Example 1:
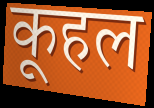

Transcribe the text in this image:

कूहल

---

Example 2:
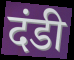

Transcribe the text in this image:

दंडी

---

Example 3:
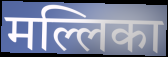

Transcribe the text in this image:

मल्लिका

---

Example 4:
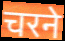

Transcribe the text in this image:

चरने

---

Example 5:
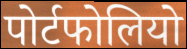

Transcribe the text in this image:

पोर्टफोलियो